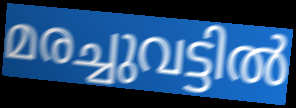
മരച്ചുവട്ടിൽ